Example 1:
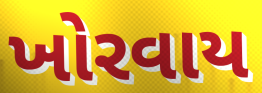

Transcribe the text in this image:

ખોરવાય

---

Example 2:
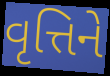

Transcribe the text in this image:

વૃત્તિને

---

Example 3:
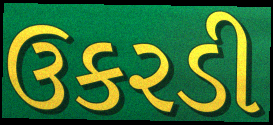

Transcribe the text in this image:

ઉકરડી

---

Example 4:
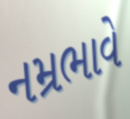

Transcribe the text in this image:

નમ્રભાવે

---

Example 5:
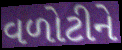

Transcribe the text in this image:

વળોટીને